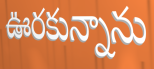
ఊరకున్నాను